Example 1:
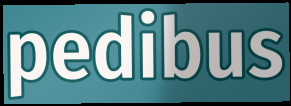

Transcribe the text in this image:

pedibus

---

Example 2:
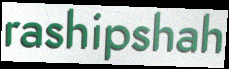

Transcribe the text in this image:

rashipshah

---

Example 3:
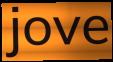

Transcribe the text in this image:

jove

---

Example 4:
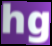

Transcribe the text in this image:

hg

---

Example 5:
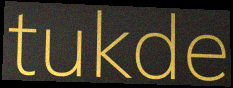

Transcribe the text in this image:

tukde